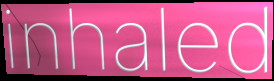
inhaled